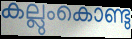
കല്ലുംകൊണ്ടു